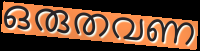
ഒരുതവണ